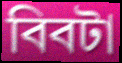
বিবটা